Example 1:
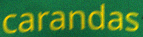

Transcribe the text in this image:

carandas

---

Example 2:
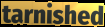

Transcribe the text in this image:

tarnished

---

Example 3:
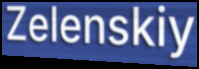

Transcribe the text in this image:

Zelenskiy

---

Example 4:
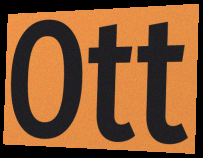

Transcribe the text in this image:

Ott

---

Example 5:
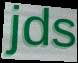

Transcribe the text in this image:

jds